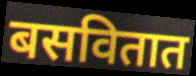
बसवितात